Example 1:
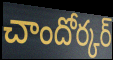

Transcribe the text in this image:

చాందోర్కర్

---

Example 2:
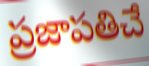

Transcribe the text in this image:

ప్రజాపతిచే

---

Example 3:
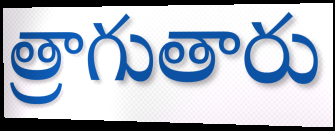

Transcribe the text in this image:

త్రాగుతారు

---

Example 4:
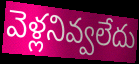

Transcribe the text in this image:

వెళ్లనివ్వలేదు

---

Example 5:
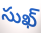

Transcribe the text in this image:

సుఖ్